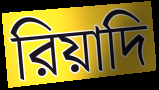
রিয়াদি